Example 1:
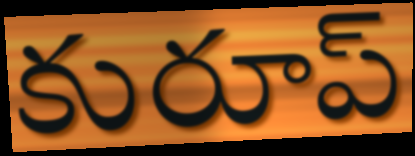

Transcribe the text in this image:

కురూప్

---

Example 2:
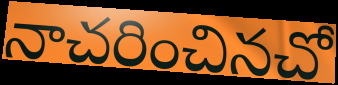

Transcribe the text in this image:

నాచరించినచో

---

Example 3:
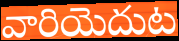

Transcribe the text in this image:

వారియెదుట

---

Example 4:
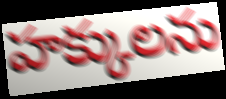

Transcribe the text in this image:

హక్కులను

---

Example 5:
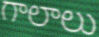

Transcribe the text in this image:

గాలాలు